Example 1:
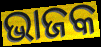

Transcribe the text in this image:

ଭାଜକ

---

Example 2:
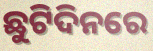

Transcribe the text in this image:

ଛୁଟିଦିନରେ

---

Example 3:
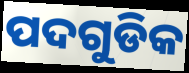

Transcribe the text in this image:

ପଦଗୁଡିକ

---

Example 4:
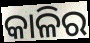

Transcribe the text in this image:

କାଳିର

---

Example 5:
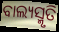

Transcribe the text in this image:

ବାଲ୍ୟସ୍ମୃତି